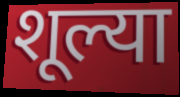
शूल्या